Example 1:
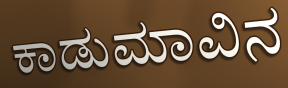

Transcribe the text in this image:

ಕಾಡುಮಾವಿನ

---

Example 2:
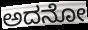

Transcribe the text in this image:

ಅದನೋ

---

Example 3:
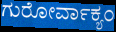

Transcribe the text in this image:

ಗುರೋರ್ವಾಕ್ಯಂ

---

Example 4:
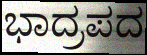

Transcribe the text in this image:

ಭಾದ್ರಪದ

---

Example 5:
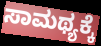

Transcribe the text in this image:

ಸಾಮಥ್ಯಕ್ಕೆ